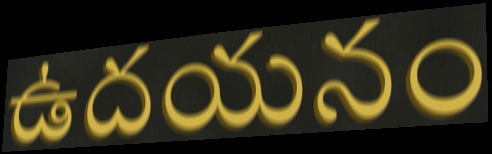
ఉదయనం